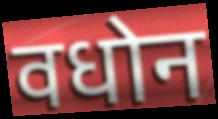
वधोन